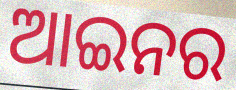
ଆଇନର